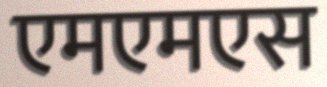
एमएमएस